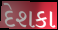
દેશકા